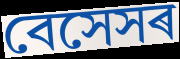
বেসেসৰ